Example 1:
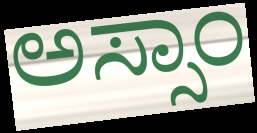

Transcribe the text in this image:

ಅಸ್ಸಾಂ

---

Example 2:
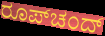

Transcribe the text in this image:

ರೂಪ್‌ಚಂದ್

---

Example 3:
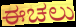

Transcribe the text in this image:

ಈಚಲು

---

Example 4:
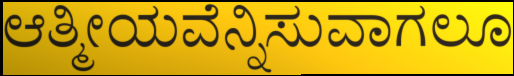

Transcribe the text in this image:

ಆತ್ಮೀಯವೆನ್ನಿಸುವಾಗಲೂ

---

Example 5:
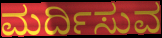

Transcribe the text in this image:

ಮರ್ದಿಸುವ